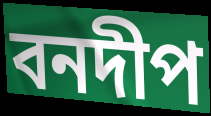
বনদীপ